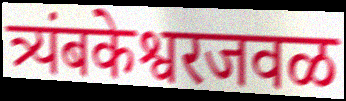
त्र्यंबकेश्वरजवळ